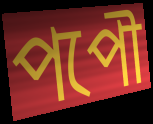
পপৌ